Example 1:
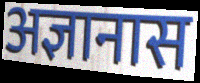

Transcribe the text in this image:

अज्ञानास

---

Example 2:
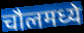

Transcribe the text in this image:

चौलमध्ये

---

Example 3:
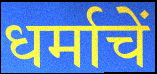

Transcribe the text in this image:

धर्माचें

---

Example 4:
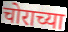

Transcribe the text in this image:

चोराच्या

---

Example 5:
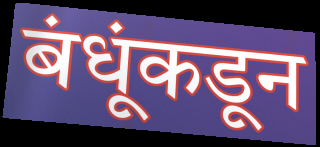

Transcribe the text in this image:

बंधूंकडून